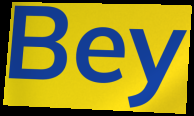
Bey